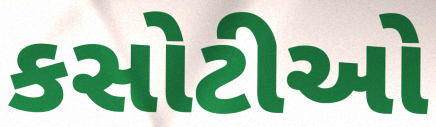
કસોટીઓ